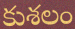
కుశలం